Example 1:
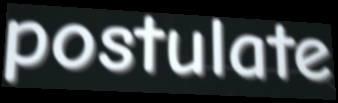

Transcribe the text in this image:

postulate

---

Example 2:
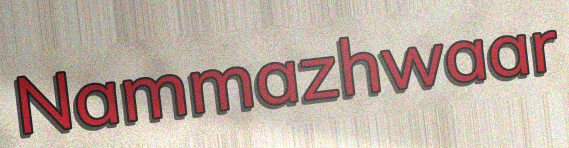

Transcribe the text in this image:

Nammazhwaar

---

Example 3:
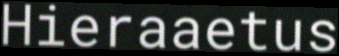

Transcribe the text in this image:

Hieraaetus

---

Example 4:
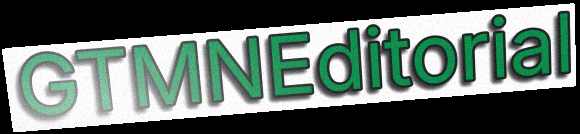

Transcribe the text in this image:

GTMNEditorial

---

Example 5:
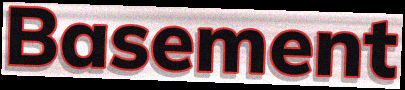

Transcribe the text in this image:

Basement